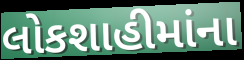
લોકશાહીમાંના